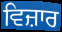
ਵਿਜ਼ਾਰ